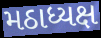
મઠાધ્યક્ષ